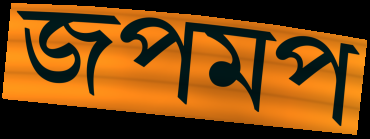
জপমপ